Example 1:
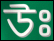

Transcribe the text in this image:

উঃ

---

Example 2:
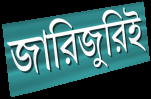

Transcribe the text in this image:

জারিজুরিই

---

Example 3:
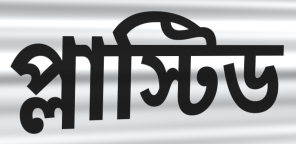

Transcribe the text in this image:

প্লাস্টিড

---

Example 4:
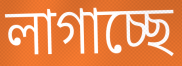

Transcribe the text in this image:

লাগাচ্ছে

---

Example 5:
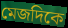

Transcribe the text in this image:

মেজদিকে